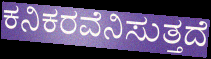
ಕನಿಕರವೆನಿಸುತ್ತದೆ